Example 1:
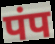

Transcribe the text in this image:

पंप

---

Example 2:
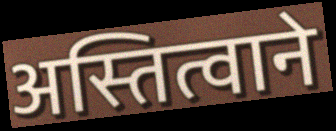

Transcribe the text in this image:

अस्तित्वाने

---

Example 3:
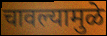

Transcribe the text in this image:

चावल्यामुळे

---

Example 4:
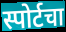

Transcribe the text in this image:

स्पोर्टचा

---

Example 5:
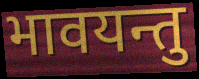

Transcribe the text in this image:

भावयन्तु